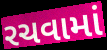
રચવામાં